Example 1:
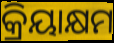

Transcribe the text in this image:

କ୍ରିୟାକ୍ଷମ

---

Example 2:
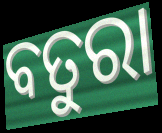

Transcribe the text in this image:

ବତୁରା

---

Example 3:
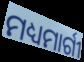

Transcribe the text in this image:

ମଧ୍ୟମାର୍ଗୀ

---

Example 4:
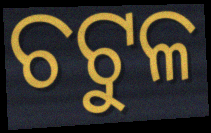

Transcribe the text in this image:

ଚଟୁଳ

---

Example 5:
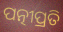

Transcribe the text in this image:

ପତ୍ନୀପ୍ରତି